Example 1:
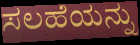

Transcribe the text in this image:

ಸಲಹೆಯನ್ನು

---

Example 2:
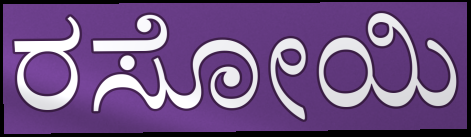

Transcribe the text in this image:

ರಸೋಯಿ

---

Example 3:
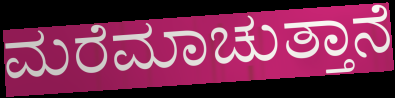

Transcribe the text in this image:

ಮರೆಮಾಚುತ್ತಾನೆ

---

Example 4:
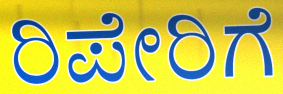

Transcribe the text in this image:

ರಿಪೇರಿಗೆ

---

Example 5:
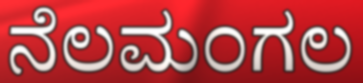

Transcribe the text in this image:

ನೆಲಮಂಗಲ